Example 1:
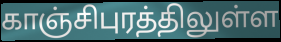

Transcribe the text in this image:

காஞ்சிபுரத்திலுள்ள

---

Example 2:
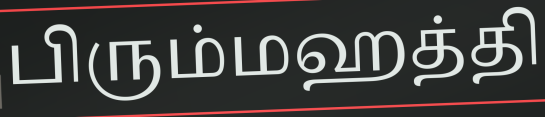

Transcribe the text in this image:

பிரும்மஹத்தி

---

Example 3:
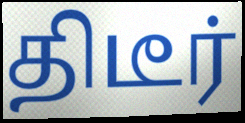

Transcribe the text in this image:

திடீர்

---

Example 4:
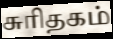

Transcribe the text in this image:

சுரிதகம்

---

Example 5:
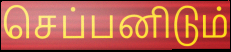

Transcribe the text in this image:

செப்பனிடும்